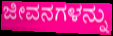
ಜೀವನಗಳನ್ನು